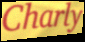
Charly